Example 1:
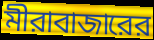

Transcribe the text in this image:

মীরাবাজারের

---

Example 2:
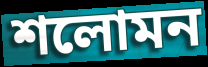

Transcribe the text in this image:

শলোমন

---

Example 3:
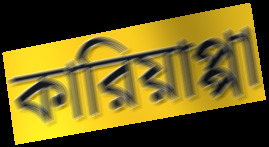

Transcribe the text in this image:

কারিয়াপ্পা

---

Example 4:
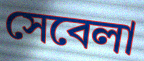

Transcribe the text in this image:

সেবেলা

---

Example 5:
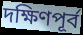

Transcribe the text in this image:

দক্ষিণপূর্ব